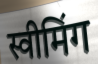
स्वीमिंग